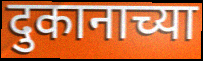
दुकानाच्या